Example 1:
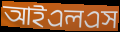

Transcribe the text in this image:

আইএলএস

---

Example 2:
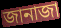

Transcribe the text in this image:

জানাজা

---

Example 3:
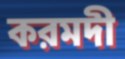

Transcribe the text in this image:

করমদী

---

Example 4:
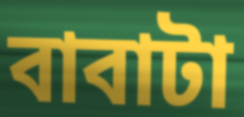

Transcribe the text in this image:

বাবাটা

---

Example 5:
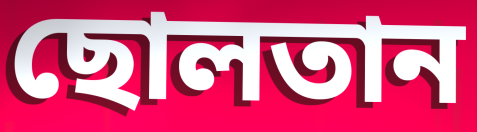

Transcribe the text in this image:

ছোলতান